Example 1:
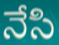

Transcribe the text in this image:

నేసి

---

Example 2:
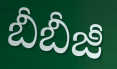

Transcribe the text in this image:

బీబీజీ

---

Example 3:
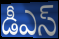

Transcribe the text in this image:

డీఎస్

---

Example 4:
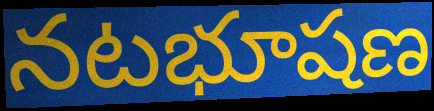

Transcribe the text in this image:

నటభూషణ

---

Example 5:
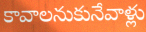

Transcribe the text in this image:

కావాలనుకునేవాళ్లు